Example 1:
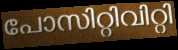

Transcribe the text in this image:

പോസിറ്റിവിറ്റി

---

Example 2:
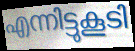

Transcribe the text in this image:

എന്നിട്ടുകൂടി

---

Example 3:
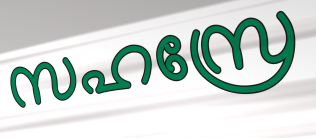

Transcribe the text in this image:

സഹസ്രേ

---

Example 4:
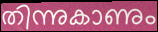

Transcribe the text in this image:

തിന്നുകാണും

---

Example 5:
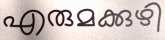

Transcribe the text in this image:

എരുമക്കുഴി